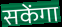
सकेंगा